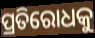
ପ୍ରତିରୋଧକୁ